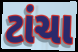
ટાંચા